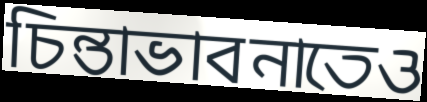
চিন্তাভাবনাতেও